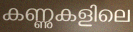
കണ്ണുകളിലെ